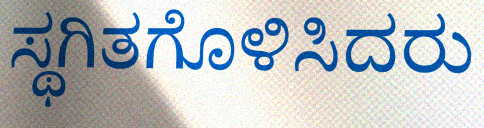
ಸ್ಥಗಿತಗೊಳಿಸಿದರು